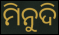
ମିନୁଦି